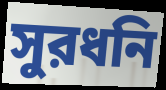
সুরধনি